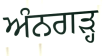
ਅੰਨਗੜ੍ਹ